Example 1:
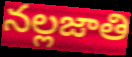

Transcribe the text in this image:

నల్లజాతి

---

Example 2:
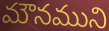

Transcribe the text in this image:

మౌనముని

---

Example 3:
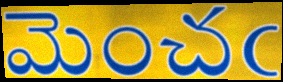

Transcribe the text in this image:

మెంచఁ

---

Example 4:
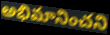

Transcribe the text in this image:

అభిమానించని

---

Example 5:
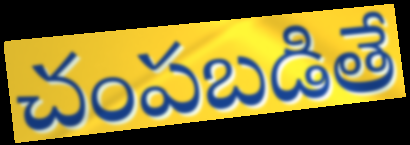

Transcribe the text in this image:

చంపబడితే